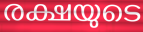
രക്ഷയുടെ